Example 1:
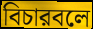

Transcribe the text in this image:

বিচারবলে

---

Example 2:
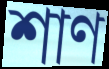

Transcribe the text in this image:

শাণ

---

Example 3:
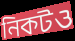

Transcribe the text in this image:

নিকটও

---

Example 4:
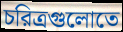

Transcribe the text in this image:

চরিত্রগুলোতে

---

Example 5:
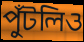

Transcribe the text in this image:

পুঁটলিও